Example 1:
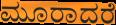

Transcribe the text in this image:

ಮೂರಾದರೆ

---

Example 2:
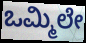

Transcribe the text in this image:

ಒಮ್ಮಿಲೇ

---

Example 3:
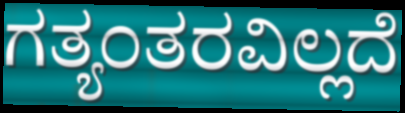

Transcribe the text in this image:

ಗತ್ಯಂತರವಿಲ್ಲದೆ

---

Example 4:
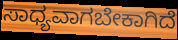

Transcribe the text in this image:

ಸಾಧ್ಯವಾಗಬೇಕಾಗಿದೆ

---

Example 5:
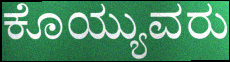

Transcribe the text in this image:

ಕೊಯ್ಯುವರು